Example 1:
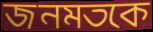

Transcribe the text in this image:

জনমতকে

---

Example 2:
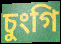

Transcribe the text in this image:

চুংগি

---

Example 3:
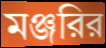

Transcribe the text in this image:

মঞ্জরির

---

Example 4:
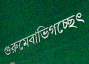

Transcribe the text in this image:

গুরুমেবাভিগচ্ছেৎ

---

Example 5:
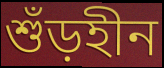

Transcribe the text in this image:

শুঁড়হীন